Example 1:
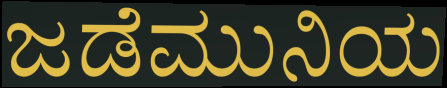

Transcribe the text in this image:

ಜಡೆಮುನಿಯ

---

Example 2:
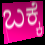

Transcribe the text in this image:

ಬಕ್ಕೆ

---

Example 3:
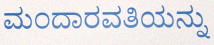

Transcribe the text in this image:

ಮಂದಾರವತಿಯನ್ನು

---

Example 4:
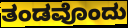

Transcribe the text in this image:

ತಂಡವೊಂದು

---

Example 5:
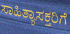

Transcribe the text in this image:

ಸಾಹಿತ್ಯಾಸಕ್ತರಿಗೆ